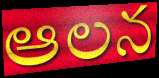
ఆలన